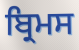
ਬ੍ਰਿਮਸ